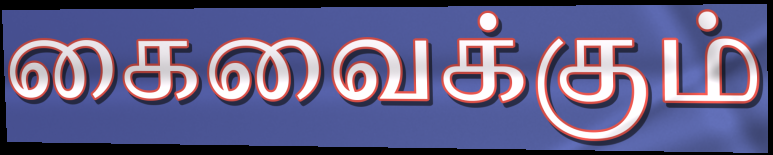
கைவைக்கும்